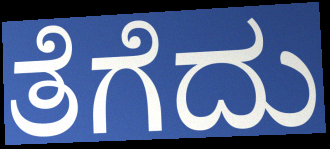
ತೆಗೆದು